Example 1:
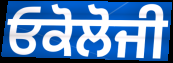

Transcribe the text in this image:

ਓਕੋਲੋਜੀ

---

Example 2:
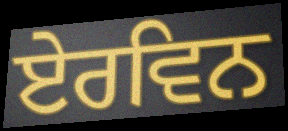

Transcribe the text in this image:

ਏਰਵਿਨ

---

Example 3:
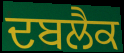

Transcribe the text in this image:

ਦਬਲੈਕ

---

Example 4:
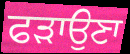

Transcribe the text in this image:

ਫੜਾਉਣਾ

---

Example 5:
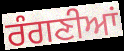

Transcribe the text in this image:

ਰੰਗਣੀਆਂ